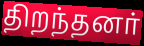
திறந்தனர்